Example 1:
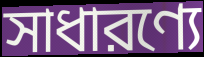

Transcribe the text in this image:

সাধারণ্যে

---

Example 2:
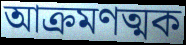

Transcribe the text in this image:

আক্রমণত্মক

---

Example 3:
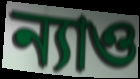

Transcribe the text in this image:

ন্যাও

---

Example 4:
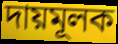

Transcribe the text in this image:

দায়মূলক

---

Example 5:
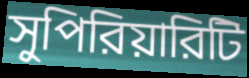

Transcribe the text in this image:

সুপিরিয়ারিটি